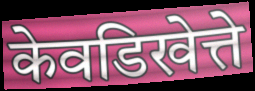
केवडिखेत्ते